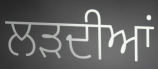
ਲੜਦੀਆਂ